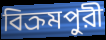
বিক্রমপুরী